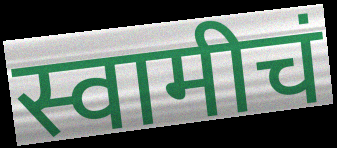
स्वामीचं